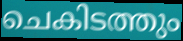
ചെകിടത്തും